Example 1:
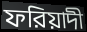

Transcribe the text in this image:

ফরিয়াদী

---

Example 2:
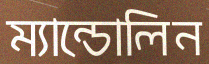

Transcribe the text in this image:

ম্যান্ডোলিন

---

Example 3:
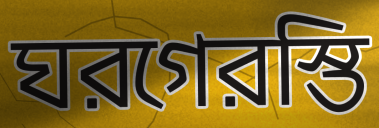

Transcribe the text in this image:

ঘরগেরস্তি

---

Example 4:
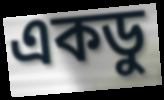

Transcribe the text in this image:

একডু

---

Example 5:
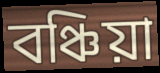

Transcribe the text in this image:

বঞ্চিয়া